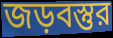
জড়বস্তুর